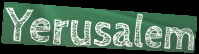
Yerusalem